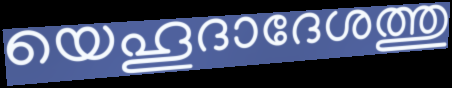
യെഹൂദാദേശത്തു